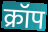
क्रॉप